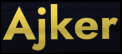
Ajker